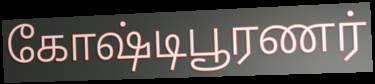
கோஷ்டிபூரணர்